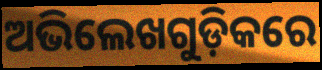
ଅଭିଲେଖଗୁଡ଼ିକରେ